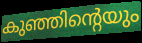
കുഞ്ഞിന്റെയും